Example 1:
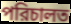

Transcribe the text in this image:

পরিচালত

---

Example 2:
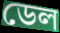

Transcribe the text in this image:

ডেল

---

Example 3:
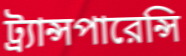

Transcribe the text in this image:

ট্র্যান্সপারেন্সি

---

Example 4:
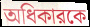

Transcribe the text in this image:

অধিকারকে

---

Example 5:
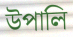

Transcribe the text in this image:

উপালি